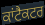
ਕਾਂਟੈਕਟਰ